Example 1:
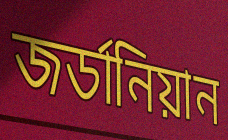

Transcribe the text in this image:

জর্ডানিয়ান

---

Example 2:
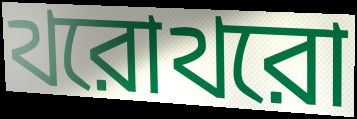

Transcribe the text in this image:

থরোথরো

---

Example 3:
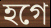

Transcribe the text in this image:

হগে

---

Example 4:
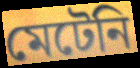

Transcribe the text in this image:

মেটেনি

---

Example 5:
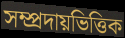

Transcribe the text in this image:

সম্প্রদায়ভিত্তিক